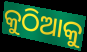
କୁଠିଆକୁ